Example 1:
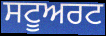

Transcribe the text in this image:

ਸਟੂਅਰਟ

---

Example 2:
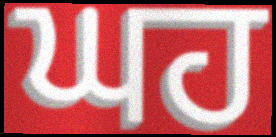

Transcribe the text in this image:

ਘਹ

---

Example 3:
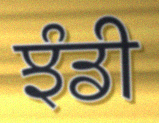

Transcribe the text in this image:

ਝੰਡੀ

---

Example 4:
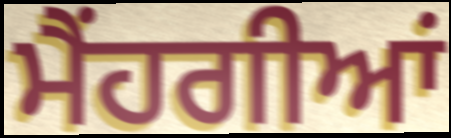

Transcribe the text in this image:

ਮੈਂਹਗੀਆਂ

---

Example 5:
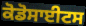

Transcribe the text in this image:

ਕੋਡੋਸਾਈਟਸ